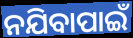
ନଯିବାପାଇଁ